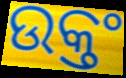
ଉକ୍ତଂ